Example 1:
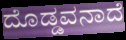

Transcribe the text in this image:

ದೊಡ್ಡವನಾದೆ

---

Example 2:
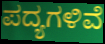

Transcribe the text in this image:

ಪದ್ಯಗಳಿವೆ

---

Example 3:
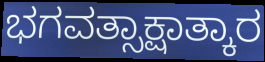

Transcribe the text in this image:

ಭಗವತ್ಸಾಕ್ಷಾತ್ಕಾರ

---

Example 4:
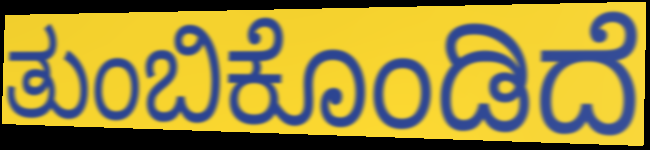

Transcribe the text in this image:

ತುಂಬಿಕೊಂಡಿದೆ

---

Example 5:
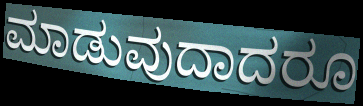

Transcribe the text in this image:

ಮಾಡುವುದಾದರೂ